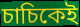
চাচিকেই